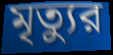
মৃত্যুর